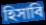
হিসাবি